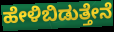
ಹೇಳಿಬಿಡುತ್ತೇನೆ